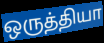
ஒருத்தியா